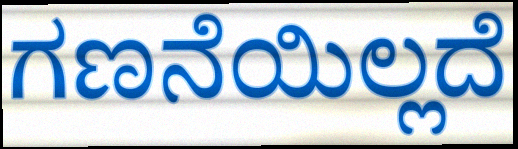
ಗಣನೆಯಿಲ್ಲದೆ